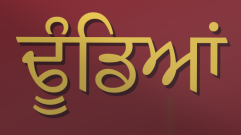
ਢੂੰਡਿਆਂ